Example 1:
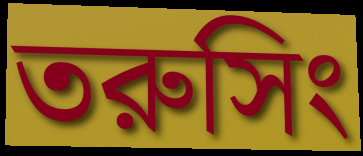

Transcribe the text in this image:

তরুসিং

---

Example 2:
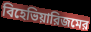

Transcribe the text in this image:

বিহেভিয়ারিজমের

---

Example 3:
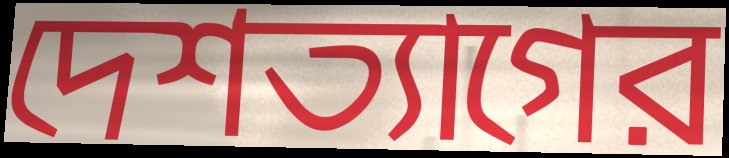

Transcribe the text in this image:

দেশত্যাগের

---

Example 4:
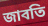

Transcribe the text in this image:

জাবতি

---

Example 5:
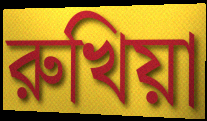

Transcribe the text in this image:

রুখিয়া